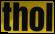
thol